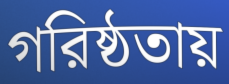
গরিষ্ঠতায়